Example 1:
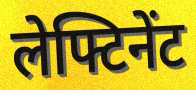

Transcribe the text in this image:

लेफ्टिनेंट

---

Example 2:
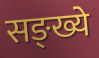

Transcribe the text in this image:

सङ्ख्ये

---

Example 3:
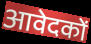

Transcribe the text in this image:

आवेदकों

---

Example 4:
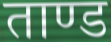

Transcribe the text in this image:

ताण्ड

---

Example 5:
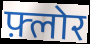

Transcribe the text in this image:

फ़्लोर